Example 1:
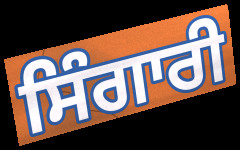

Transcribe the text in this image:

ਸਿੰਗਾਰੀ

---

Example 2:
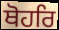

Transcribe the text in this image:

ਥੋਹਰਿ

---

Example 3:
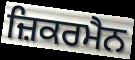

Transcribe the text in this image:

ਜ਼ਿਕਰਮੈਨ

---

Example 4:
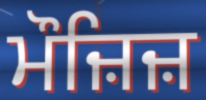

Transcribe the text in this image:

ਮੌਜ਼ਿਜ਼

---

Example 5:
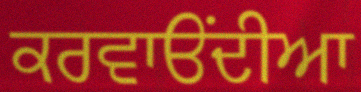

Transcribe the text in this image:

ਕਰਵਾੳਂਦੀਆ